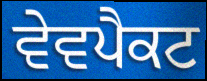
ਵੇਵਪੈਕਟ